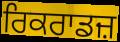
ਰਿਕਰਾਡਜ਼